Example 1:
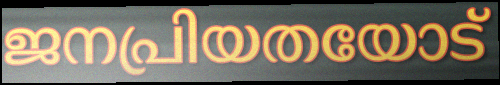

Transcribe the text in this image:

ജനപ്രിയതയോട്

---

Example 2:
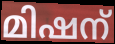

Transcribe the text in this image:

മിഷന്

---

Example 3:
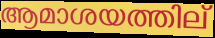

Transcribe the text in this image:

ആമാശയത്തില്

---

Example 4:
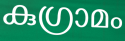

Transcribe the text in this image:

കുഗ്രാമം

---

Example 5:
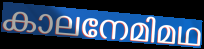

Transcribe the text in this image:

കാലനേമിമഥ